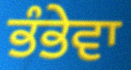
ਭੰਭੇਵਾ